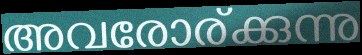
അവരോര്ക്കുന്നു